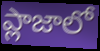
ప్లాజాలో